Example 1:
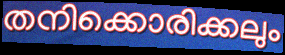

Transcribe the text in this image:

തനിക്കൊരിക്കലും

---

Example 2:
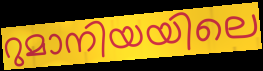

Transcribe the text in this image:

റുമാനിയയിലെ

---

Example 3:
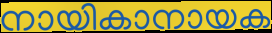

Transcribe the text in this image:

നായികാനായക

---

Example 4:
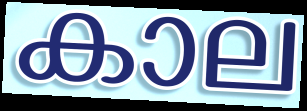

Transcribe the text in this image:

കാല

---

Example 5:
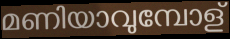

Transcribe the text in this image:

മണിയാവുമ്പോള്